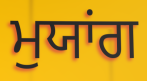
ਮੁਯਾਂਗ